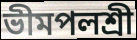
ভীমপলশ্রী